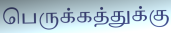
பெருக்கத்துக்கு